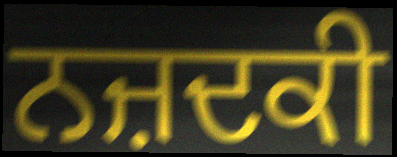
ਨਜ਼ਦਕੀ